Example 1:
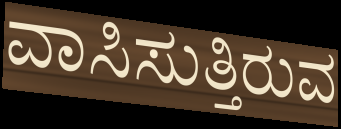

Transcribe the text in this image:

ವಾಸಿಸುತ್ತಿರುವ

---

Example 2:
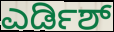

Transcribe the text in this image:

ಎರ್ಡಿಶ್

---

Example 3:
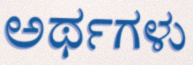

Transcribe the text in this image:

ಅರ್ಥಗಳು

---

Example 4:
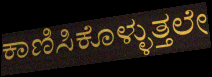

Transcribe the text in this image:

ಕಾಣಿಸಿಕೊಳ್ಳುತ್ತಲೇ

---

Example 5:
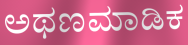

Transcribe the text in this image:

ಅಥಣಮಾಡಿಕ